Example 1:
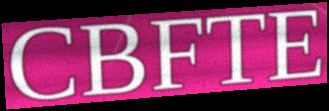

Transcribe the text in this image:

CBFTE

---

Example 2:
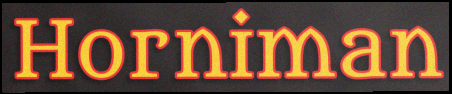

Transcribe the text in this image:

Horniman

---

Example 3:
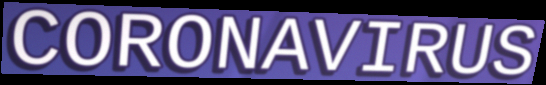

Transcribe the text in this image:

CORONAVIRUS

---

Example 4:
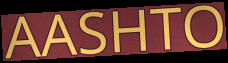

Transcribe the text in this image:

AASHTO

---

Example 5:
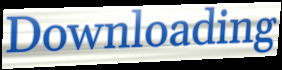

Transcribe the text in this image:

Downloading